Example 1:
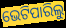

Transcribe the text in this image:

ଭେଟିପାରିଲୁ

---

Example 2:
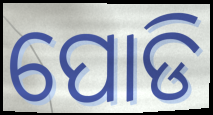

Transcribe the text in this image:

ପୋଡି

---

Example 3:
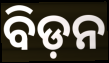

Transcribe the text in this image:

ବିଡ଼ନ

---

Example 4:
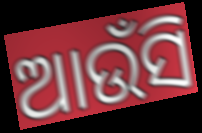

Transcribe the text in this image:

ଆଉଁସି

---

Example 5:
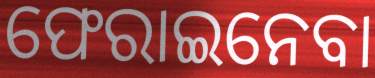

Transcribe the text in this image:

ଫେରାଇନେବା